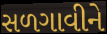
સળગાવીને